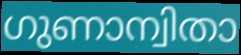
ഗുണാന്വിതാ